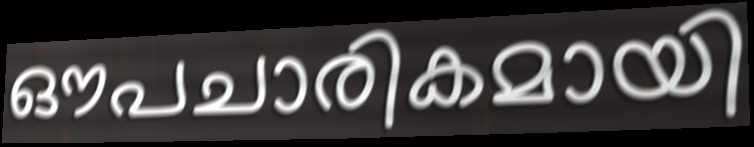
ഔപചാരികമായി